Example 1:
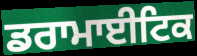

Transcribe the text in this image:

ਡਰਾਮਾਈਟਿਕ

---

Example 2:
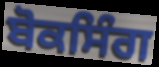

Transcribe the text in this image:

ਬੋਕਸਿੰਗ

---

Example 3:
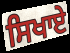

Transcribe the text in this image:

ਸਿਖਾਏੇ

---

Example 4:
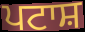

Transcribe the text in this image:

ਪਟਾਸ਼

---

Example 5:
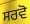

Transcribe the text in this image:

ਸਰਵੋ